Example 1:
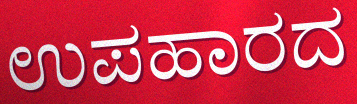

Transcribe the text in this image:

ಉಪಹಾರದ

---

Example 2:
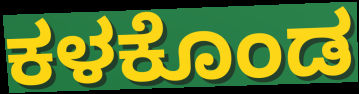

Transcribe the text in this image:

ಕಳಕೊಂಡ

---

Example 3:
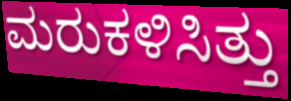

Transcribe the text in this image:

ಮರುಕಳಿಸಿತ್ತು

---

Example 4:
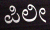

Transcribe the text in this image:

ಪಿಲೀ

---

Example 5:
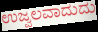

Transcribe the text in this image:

ಉಜ್ವಲವಾದುದು